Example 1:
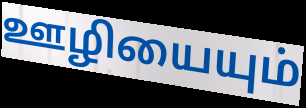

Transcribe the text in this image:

ஊழியையும்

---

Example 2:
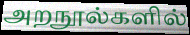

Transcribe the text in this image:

அறநூல்களில்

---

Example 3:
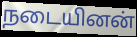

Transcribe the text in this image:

நடையினன்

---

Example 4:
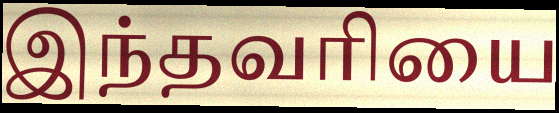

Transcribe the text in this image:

இந்தவரியை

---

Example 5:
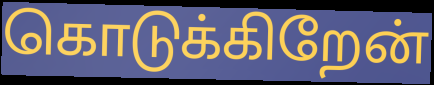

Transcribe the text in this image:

கொடுக்கிறேன்